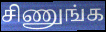
சிணுங்க